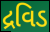
દ્રવિડ